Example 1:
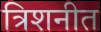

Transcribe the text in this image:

त्रिशनीत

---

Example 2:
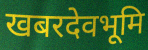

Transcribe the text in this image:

खबरदेवभूमि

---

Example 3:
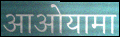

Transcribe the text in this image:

आओयामा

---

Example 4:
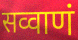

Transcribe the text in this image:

सव्वाणं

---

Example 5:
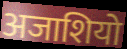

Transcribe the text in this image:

अजाशियो